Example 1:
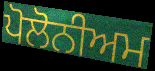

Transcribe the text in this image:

ਪੋਲੋਨੀਅਮ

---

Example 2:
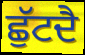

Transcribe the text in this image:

ਛੁੱਟਦੈ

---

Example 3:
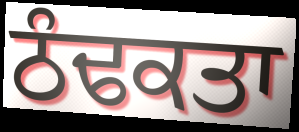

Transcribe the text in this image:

ਠੰਢਕਤਾ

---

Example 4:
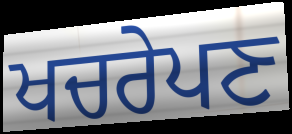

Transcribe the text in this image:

ਖਚਰੇਪਣ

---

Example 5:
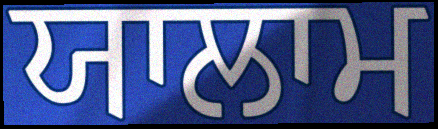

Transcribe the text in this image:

ਯਾਲਾਮ